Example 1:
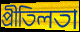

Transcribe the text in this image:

প্রীতিলতা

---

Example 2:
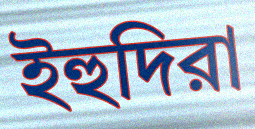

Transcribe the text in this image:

ইহুদিরা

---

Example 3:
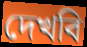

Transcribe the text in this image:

দেখবি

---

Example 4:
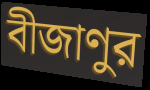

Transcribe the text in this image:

বীজাণুর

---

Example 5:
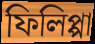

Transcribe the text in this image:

ফিলিপ্পা